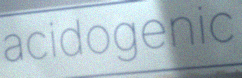
acidogenic